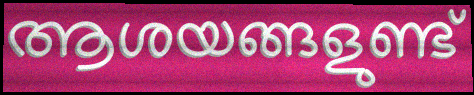
ആശയങ്ങളുണ്ട്